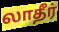
லாதீர்